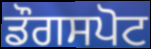
ਡੌਗਸਪੋਟ